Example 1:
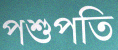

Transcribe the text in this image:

পশুপতি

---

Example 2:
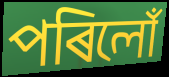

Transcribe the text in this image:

পৰিলোঁ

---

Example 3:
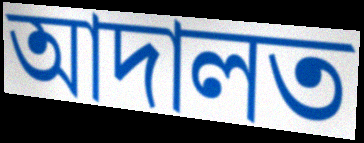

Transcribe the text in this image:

আদালত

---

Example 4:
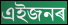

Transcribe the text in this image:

এইজনৰ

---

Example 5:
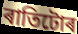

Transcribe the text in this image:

ৰাতিটোৰ